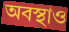
অবস্থাও